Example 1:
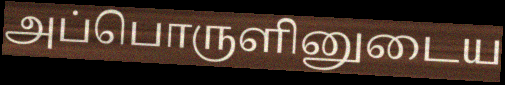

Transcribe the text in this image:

அப்பொருளினுடைய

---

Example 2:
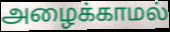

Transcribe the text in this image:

அழைக்காமல்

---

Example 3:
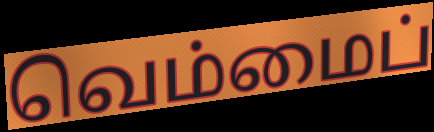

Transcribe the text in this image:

வெம்மைப்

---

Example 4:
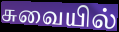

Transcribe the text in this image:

சுவையில்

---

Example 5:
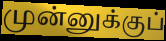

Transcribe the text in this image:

முன்னுக்குப்